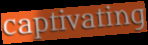
captivating